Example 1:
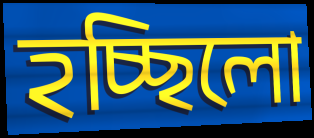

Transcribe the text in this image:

হচ্ছিলো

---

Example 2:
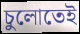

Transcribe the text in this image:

চুলোতেই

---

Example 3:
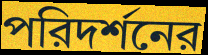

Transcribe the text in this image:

পরিদর্শনের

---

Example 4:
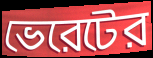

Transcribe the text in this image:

ভেরেটের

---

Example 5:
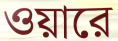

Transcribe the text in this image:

ওয়ারে